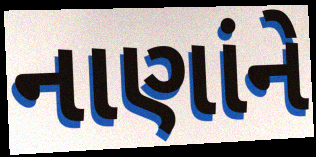
નાણાંને